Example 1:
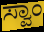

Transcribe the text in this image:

ಸ್ವಾಂ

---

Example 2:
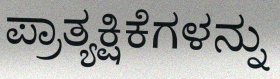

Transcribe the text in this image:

ಪ್ರಾತ್ಯಕ್ಷಿಕೆಗಳನ್ನು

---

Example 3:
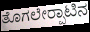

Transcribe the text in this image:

ತೊಗಲೇರ‍್ಪಾಟಿನ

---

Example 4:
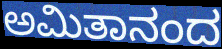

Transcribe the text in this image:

ಅಮಿತಾನಂದ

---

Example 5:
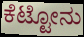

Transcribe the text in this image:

ಕೆಟ್ಟೋನು